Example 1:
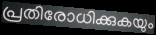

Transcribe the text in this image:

പ്രതിരോധിക്കുകയും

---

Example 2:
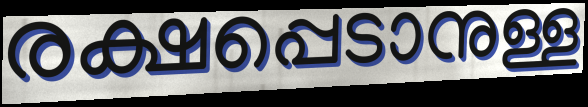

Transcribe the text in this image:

രക്ഷപ്പെടാനുള്ള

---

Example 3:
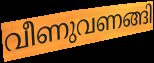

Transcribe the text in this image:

വീണുവണങ്ങി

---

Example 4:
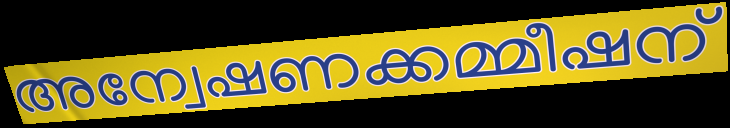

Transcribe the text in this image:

അന്വേഷണക്കമ്മീഷന്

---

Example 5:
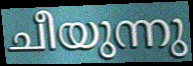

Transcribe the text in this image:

ചീയുന്നു